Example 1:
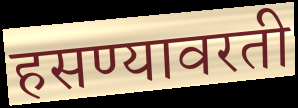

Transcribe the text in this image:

हसण्यावरती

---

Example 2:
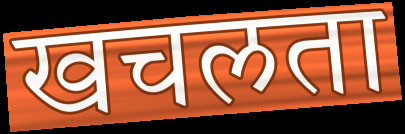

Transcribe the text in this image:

खचलता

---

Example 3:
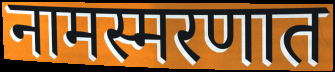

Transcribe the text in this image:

नामस्मरणात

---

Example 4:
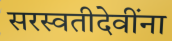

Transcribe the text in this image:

सरस्वतीदेवींना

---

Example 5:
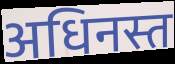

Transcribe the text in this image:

अधिनस्त